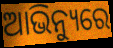
ଆଭିନ୍ୟୁରେ